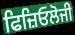
ਫਿਜ਼ਿਓਲੋਜੀ